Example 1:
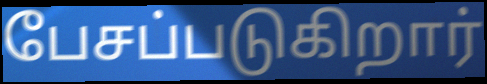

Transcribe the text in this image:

பேசப்படுகிறார்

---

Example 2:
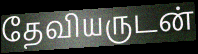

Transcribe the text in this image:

தேவியருடன்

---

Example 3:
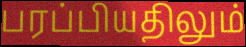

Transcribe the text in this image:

பரப்பியதிலும்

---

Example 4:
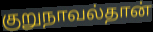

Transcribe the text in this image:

குறுநாவல்தான்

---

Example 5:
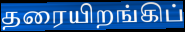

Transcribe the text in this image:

தரையிறங்கிப்